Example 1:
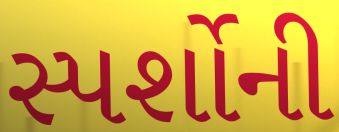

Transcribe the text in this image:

સ્પર્શોની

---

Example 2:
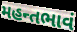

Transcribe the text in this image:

મહન્તભાવં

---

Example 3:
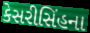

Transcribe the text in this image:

કેસરીસિંહના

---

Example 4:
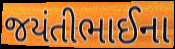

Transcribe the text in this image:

જયંતીભાઈના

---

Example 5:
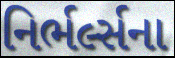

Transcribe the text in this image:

નિર્ભર્લ્સના